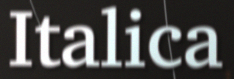
Italica